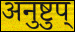
अनुष्टुप्